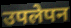
उपलेपन